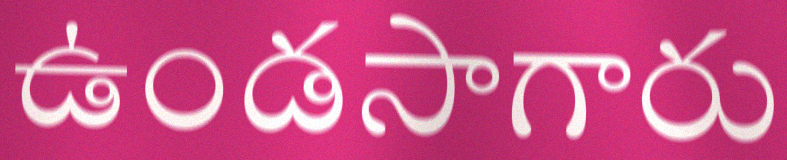
ఉండసాగారు